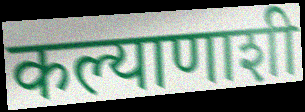
कल्याणाशी